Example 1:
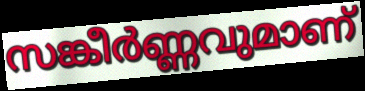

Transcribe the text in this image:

സങ്കീർണ്ണവുമാണ്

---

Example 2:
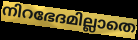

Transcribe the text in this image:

നിറഭേദമില്ലാതെ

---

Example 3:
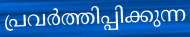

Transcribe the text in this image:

പ്രവർത്തിപ്പിക്കുന്ന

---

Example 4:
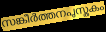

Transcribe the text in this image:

സങ്കീർത്തനപുസ്തകം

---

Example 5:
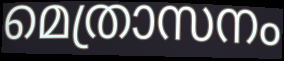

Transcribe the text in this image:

മെത്രാസനം